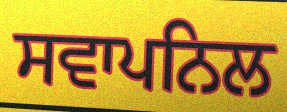
ਸਵਾਪਨਿਲ